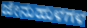
ಜೇನುಹುಳಗಳ